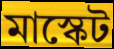
মাস্কেট